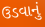
ઉડવાનું